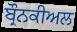
ਬ੍ਰੌਨਕੀਅਲ